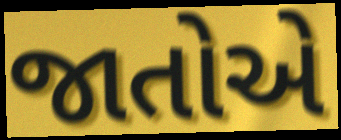
જાતોએ